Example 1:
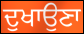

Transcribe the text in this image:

ਦੁਖਾਉਣਾ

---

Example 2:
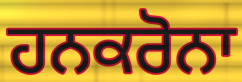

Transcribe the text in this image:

ਹਨਕਰੋਨਾ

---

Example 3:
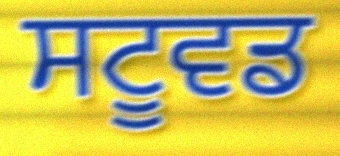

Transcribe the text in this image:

ਸਟੂਵਡ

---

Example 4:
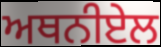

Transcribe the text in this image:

ਅਥਨੀਏਲ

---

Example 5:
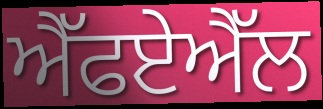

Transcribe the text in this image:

ਐੱਫਏਐੱਲ